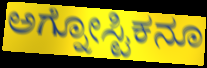
ಅಗ್ನೋಸ್ಟಿಕನೂ